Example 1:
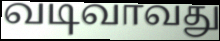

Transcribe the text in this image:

வடிவாவது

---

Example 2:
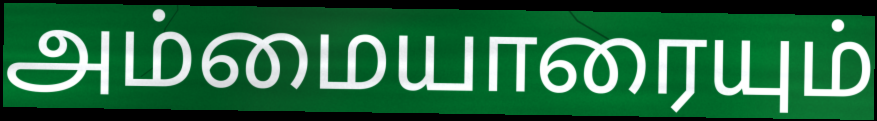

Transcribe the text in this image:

அம்மையாரையும்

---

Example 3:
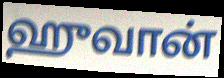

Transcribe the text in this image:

ஹுவான்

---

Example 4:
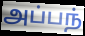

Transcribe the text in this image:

அப்பந்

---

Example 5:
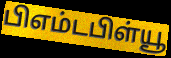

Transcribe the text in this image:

பிஎம்டபிள்யூ